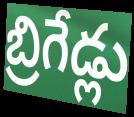
బ్రిగేడ్లు